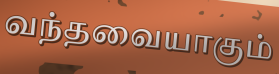
வந்தவையாகும்